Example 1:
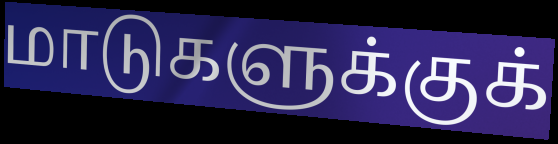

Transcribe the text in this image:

மாடுகளுக்குக்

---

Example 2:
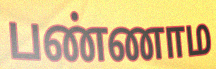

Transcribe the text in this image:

பண்ணாம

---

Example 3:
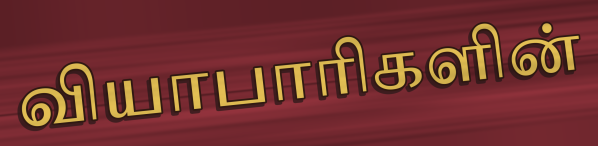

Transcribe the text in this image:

வியாபாரிகளின்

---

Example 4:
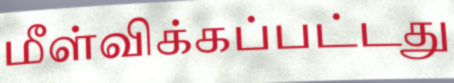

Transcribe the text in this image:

மீள்விக்கப்பட்டது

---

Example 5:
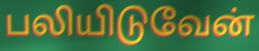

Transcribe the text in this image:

பலியிடுவேன்